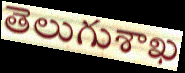
తెలుగుశాఖ